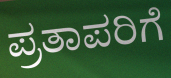
ಪ್ರತಾಪರಿಗೆ